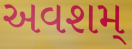
અવશમ્